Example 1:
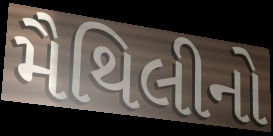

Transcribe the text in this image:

મૈથિલીનો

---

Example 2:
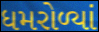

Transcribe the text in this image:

ધમરોળ્યાં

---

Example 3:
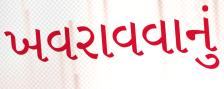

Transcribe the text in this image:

ખવરાવવાનું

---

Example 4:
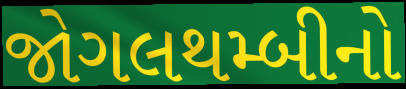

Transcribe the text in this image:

જોગલથમ્બીનો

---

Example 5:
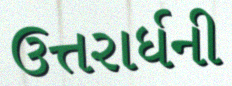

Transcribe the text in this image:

ઉત્તરાર્ધની